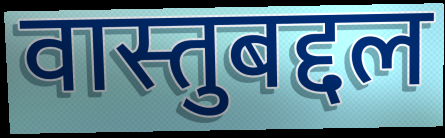
वास्तुबद्दल